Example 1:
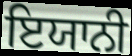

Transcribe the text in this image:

ਇਯਾਨੀ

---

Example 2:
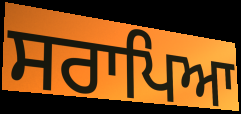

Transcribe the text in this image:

ਸਰਾਪਿਆ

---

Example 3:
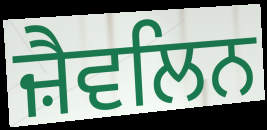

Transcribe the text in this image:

ਜ਼ੈਵਲਿਨ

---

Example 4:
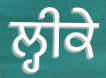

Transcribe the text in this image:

ਲ੍ਹੀਕੇ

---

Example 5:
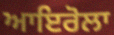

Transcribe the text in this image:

ਆਇਰੋਲਾ